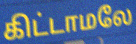
கிட்டாமலே